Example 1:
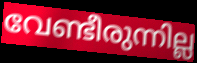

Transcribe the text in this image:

വേണ്ടീരുന്നില്ല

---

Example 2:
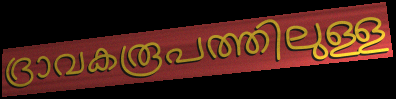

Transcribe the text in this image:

ദ്രാവകരൂപത്തിലുള്ള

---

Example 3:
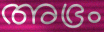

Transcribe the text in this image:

അഭ്രം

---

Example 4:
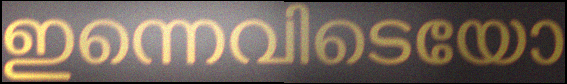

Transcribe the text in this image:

ഇന്നെവിടെയോ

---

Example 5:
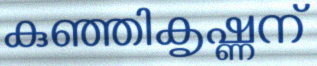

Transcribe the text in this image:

കുഞ്ഞികൃഷ്ണന്